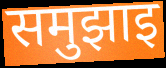
समुझाइ